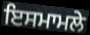
ਇਸਮਾਮਲੇ